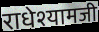
राधेश्यामजी